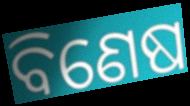
ବିଣେଷ